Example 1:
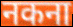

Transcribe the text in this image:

नकना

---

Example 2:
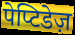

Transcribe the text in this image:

पेप्टिडेज़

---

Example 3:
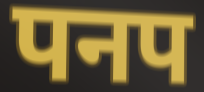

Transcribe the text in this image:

पनप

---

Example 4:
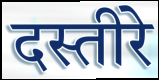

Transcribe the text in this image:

दस्तीरे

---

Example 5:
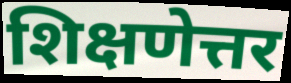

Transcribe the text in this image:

शिक्षणेत्तर